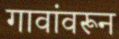
गावांवरून